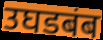
उघडबंब